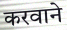
करवाने